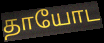
தாயோட